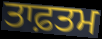
ਤਾਫ਼ਤਮ